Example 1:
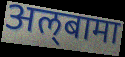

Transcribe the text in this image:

अल्बामा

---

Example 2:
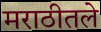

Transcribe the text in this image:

मराठीतले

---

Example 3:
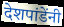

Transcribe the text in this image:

देशपांडेंनी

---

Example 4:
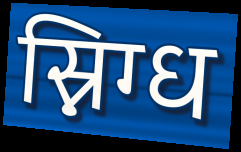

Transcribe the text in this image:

स्निग्ध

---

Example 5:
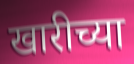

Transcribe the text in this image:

खारीच्या